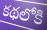
కథలోకి